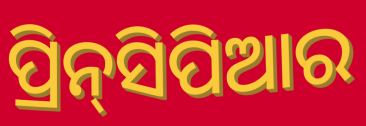
ପ୍ରିନ୍‌ସିପିଆର